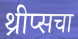
थ्रीप्सचा